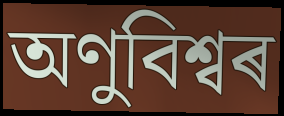
অণুবিশ্বৰ